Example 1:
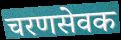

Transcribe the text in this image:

चरणसेवक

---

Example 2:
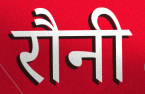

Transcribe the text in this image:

रौनी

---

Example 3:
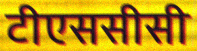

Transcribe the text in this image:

टीएससीसी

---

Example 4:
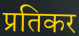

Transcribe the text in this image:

प्रतिकर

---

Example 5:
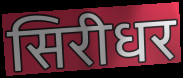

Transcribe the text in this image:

सिरीधर